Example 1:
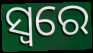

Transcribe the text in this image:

ସ୍ୱରେ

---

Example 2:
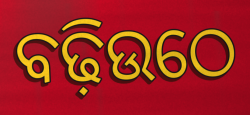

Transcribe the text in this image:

ବଢ଼ିଉଠେ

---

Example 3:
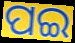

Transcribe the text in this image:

ପଇ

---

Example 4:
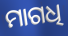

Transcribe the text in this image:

ମାଗଧି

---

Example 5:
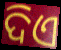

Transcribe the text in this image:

ଦିଏ